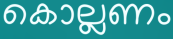
കൊല്ലണം